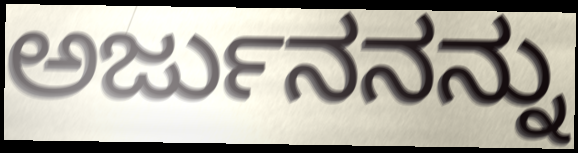
ಅರ್ಜುನನನ್ನು